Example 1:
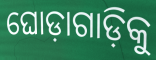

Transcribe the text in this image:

ଘୋଡ଼ାଗାଡ଼ିକୁ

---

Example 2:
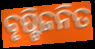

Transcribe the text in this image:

ବୃଷ୍ଟିଜନିତ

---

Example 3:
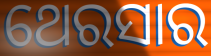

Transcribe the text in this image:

ଥେରସାର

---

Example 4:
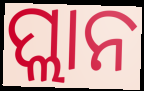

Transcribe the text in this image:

ପ୍ଲାନ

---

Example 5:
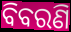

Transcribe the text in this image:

ବିବରଣି